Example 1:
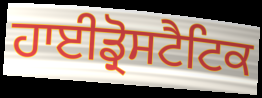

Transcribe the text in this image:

ਹਾਈਡ੍ਰੋਸਟੈਟਿਕ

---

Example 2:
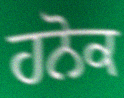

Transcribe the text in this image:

ਹਨੋਕ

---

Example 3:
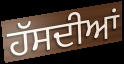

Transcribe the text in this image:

ਹੱਸਦੀਆਂ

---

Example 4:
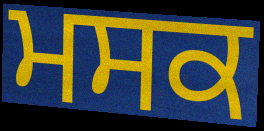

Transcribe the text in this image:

ਮਸਕ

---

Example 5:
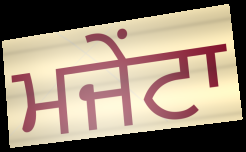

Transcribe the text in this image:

ਮਜੇਂਟਾ